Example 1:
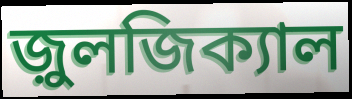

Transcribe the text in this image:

জ়ুলজিক্যাল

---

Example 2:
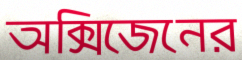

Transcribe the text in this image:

অক্সিজেনের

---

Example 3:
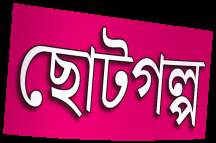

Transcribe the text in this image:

ছোটগল্প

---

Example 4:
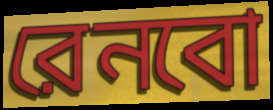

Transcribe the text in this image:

রেনবো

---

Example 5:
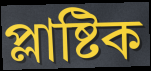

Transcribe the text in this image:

প্লাষ্টিক